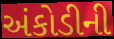
અંકોડીની